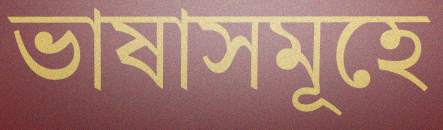
ভাষাসমূহে